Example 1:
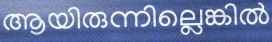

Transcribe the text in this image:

ആയിരുന്നില്ലെങ്കിൽ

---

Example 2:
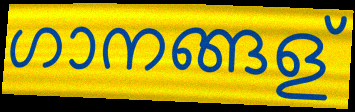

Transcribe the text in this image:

ഗാനങ്ങള്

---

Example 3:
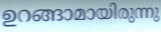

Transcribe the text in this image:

ഉറങ്ങാമായിരുന്നു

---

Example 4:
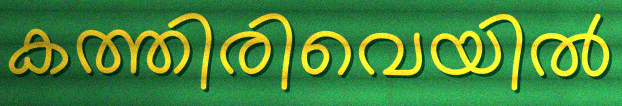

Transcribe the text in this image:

കത്തിരിവെയിൽ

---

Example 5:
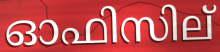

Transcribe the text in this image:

ഓഫിസില്